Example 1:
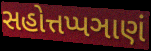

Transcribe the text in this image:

સહોત્તપ્પઞાણં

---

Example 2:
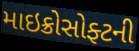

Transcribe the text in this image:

માઇક્રોસોફ્ટની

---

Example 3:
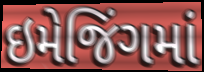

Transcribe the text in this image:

ઇમેજિંગમાં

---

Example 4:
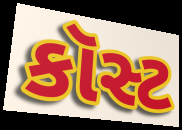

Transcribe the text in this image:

કૉસ્ટ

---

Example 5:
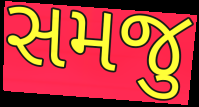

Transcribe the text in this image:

સમજુ